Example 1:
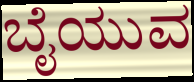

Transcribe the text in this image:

ಬೈಯುವ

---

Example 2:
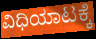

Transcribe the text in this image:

ವಿಧಿಯಾಟಕ್ಕೆ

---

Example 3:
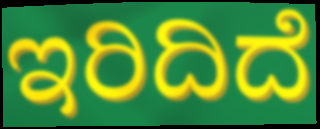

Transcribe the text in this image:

ಇರಿದಿದೆ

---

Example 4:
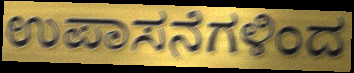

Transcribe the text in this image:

ಉಪಾಸನೆಗಳಿಂದ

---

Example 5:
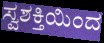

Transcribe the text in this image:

ಸ್ವಶಕ್ತಿಯಿಂದ